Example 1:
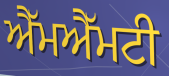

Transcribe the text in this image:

ਐੱਮਐੱਮਟੀ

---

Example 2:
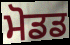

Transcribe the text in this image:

ਮੋਡਡ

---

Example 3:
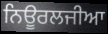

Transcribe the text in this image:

ਨਿਊਰਲਜੀਆ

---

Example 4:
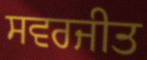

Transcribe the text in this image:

ਸਵਰਜੀਤ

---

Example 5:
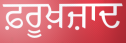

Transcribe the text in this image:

ਫ਼ਰੂਖ਼ਜ਼ਾਦ